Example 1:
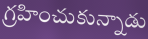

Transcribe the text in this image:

గ్రహించుకున్నాడు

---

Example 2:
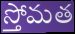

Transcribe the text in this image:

స్తోమత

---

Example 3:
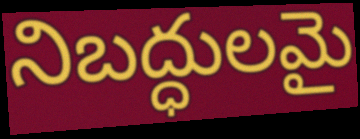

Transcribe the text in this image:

నిబద్ధులమై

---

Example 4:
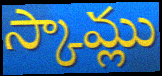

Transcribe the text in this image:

స్కామ్లు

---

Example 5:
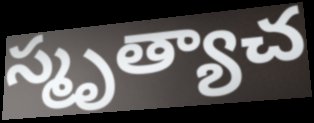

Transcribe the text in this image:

స్మృత్యాచ